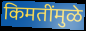
किमतींमुळे